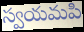
స్వయమపి